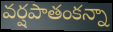
వర్షపాతంకన్నా